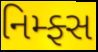
નિમ્ફ્સ